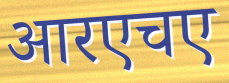
आरएचए